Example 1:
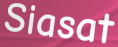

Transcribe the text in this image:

Siasat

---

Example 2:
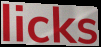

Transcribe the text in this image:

licks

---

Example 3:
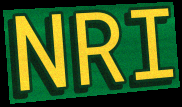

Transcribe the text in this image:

NRI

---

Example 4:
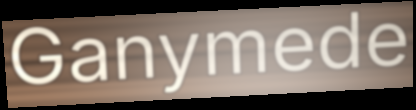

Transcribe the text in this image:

Ganymede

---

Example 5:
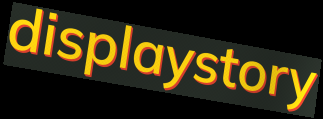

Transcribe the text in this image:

displaystory